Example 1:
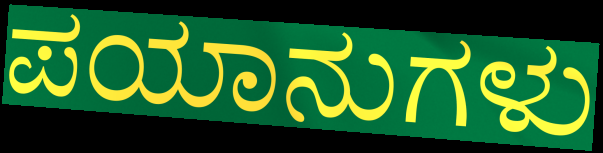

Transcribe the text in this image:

ಪಯಾನುಗಳು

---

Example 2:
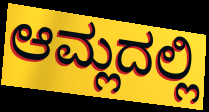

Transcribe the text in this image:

ಆಮ್ಲದಲ್ಲಿ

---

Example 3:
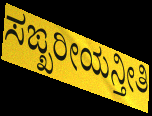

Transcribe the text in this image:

ಸಙ್ಖರೀಯನ್ತೀತಿ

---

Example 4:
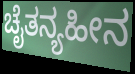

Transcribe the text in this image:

ಚೈತನ್ಯಹೀನ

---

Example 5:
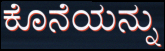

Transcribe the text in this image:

ಕೊನೆಯನ್ನು